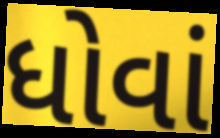
ધોવાં